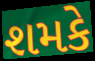
શમકે